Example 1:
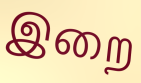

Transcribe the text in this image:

இறை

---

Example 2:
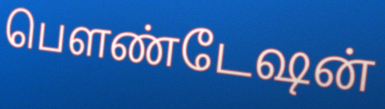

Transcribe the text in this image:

பௌண்டேஷன்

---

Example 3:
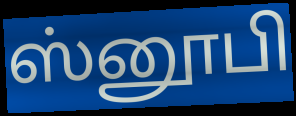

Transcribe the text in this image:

ஸ்னூபி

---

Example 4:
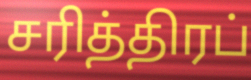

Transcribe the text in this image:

சரித்திரப்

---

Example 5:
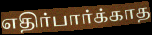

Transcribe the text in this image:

எதிர்பார்க்காத